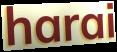
harai